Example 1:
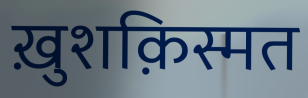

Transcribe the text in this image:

ख़ुशक़िस्मत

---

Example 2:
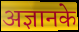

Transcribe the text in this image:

अज्ञानके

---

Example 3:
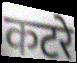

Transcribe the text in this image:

कटरे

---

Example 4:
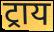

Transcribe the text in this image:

ट्राय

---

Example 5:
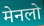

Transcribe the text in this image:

मेनलो